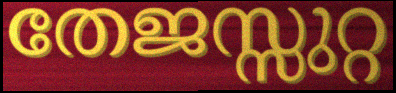
തേജസ്സുറ്റ